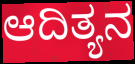
ಆದಿತ್ಯನ